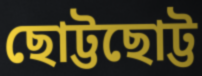
ছোট্টছোট্ট